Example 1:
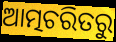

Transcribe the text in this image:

ଆତ୍ମଚରିତରୁ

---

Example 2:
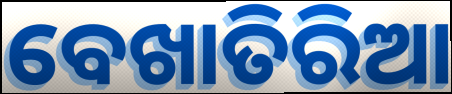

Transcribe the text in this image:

ବେଖାତିରିଆ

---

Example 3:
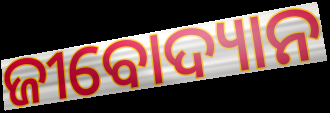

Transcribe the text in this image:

ଜୀବୋଦ୍ୟାନ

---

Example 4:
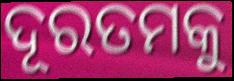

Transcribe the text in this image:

ଦୂରତମକୁ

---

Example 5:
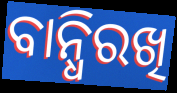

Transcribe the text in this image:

ବାନ୍ଧିରଖି